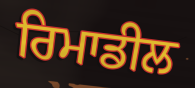
ਰਿਮਾਡੀਲ